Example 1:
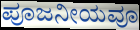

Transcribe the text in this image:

ಪೂಜನೀಯವೂ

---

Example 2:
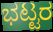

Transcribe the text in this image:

ಭಟ್ಟರ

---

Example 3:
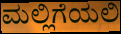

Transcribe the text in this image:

ಮಲ್ಲಿಗೆಯಲಿ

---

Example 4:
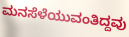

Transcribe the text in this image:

ಮನಸೆಳೆಯುವಂತಿದ್ದವು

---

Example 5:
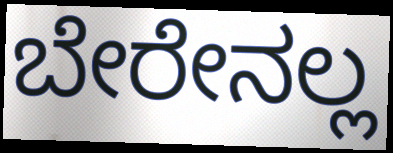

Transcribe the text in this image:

ಬೇರೇನಲ್ಲ